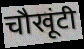
चौखूंटी